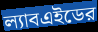
ল্যাবএইডের